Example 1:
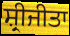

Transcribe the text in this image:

ਸ਼੍ਰੀਜੀਤਾ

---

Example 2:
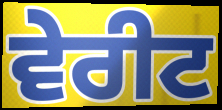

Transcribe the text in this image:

ਵੇਰੀਟ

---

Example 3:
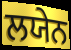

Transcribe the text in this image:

ਲਯੇਨ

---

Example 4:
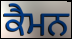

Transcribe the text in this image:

ਕੈਮਨ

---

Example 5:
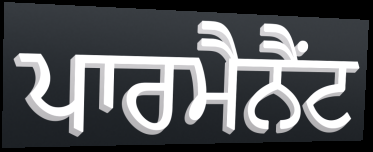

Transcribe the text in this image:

ਪਾਰਮੈਨੈਂਟ